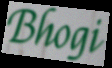
Bhogi